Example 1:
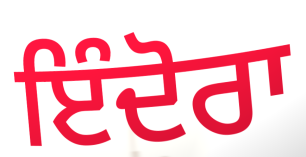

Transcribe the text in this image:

ਇੰਦੋਰਾ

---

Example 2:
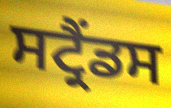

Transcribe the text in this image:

ਸਟ੍ਰੈਂਡਸ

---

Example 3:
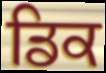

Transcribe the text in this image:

ਡਿਕ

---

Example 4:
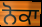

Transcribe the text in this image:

ਨੋਕਾ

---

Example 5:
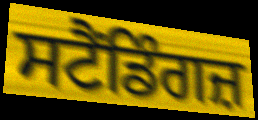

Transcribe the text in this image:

ਸਟੈਂਡਿੰਗਜ਼